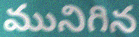
మునిగిన